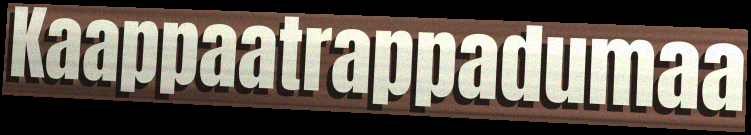
Kaappaatrappadumaa